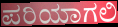
ಪರಿಯಾಗಲಿ